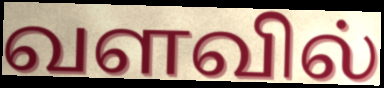
வளவில்